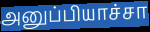
அனுப்பியாச்சா